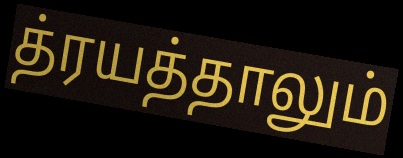
த்ரயத்தாலும்